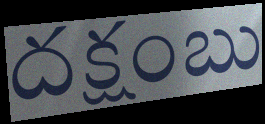
దక్షంబు